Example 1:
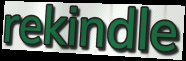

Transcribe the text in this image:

rekindle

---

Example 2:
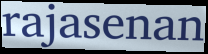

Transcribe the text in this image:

rajasenan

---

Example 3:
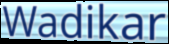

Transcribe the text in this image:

Wadikar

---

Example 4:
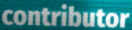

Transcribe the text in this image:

contributor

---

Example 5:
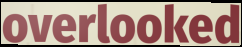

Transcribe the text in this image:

overlooked